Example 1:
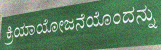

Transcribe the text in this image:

ಕ್ರಿಯಾಯೋಜನೆಯೊಂದನ್ನು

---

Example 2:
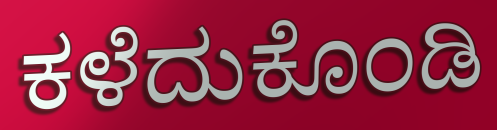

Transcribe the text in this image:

ಕಳೆದುಕೊಂಡಿ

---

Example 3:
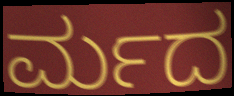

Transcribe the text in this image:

ರ್ಮದ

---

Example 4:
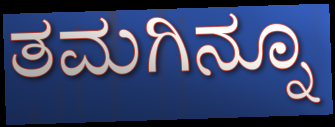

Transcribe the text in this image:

ತಮಗಿನ್ನೂ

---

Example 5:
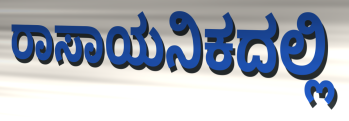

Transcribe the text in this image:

ರಾಸಾಯನಿಕದಲ್ಲಿ